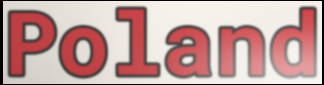
Poland